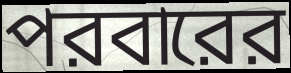
পরবারের